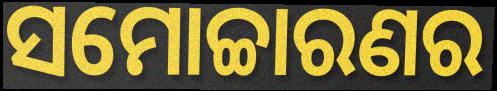
ସମୋଚ୍ଚାରଣର